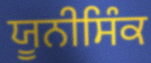
ਯੂਨੀਸਿੰਕ